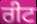
ਰੀਟ